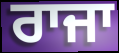
ਰਾਜਾ